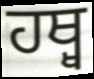
ਹਥ੍ਥ